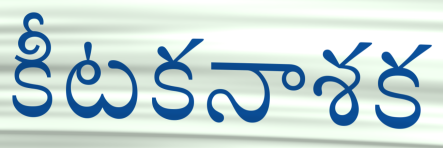
కీటకనాశక